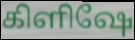
கிளிஷே